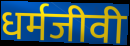
धर्मजीवी